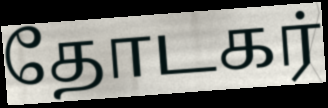
தோடகர்